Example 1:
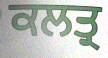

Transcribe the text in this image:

ਕਲਤ੍ਰ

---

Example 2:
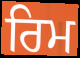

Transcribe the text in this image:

ਰਿਮ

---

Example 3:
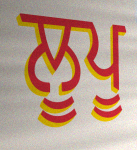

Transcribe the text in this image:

ਲੂਪੂ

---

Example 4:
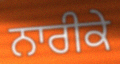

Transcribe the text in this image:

ਨਾਰੀਕੇ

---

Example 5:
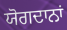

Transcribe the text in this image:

ਯੋਗਦਾਨਾਂ